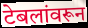
टेबलांवरून